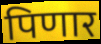
पिणार